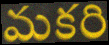
మకరి